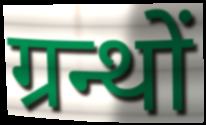
ग्रन्थों